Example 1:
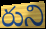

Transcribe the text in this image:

రుని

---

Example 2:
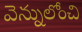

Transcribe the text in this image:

వెన్నులోంచి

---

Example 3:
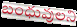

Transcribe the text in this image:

బంధువులని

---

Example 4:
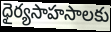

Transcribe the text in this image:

ధైర్యసాహసాలకు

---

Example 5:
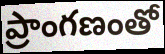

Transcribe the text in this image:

ప్రాంగణంతో